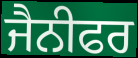
ਜੈਨੀਫਰ